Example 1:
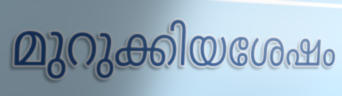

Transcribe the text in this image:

മുറുക്കിയശേഷം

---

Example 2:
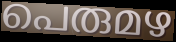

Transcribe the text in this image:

പെരുമഴ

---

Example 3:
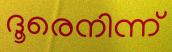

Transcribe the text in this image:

ദൂരെനിന്ന്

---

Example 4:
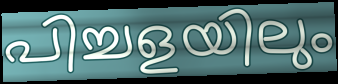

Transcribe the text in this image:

പിച്ചളയിലും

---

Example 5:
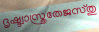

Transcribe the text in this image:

ദൃഷ്ട്വാസ്ത്രതേജസ്തു